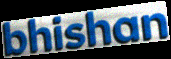
bhishan